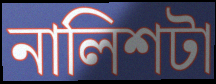
নালিশটা